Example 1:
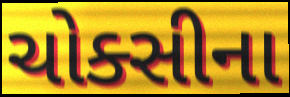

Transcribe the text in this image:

ચોક્સીના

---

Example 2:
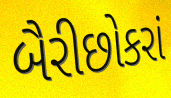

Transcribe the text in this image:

બૈરીછોકરાં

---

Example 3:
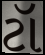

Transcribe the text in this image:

ટૉ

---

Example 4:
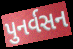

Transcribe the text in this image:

પુનર્વસન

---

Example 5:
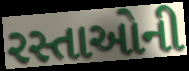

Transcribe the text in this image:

રસ્તાઓની